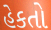
હેકતો